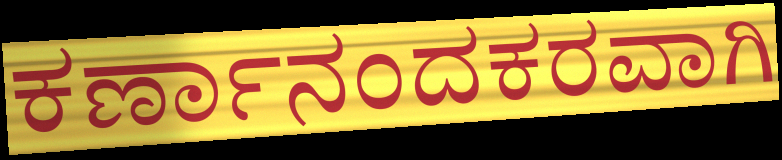
ಕರ್ಣಾನಂದಕರವಾಗಿ